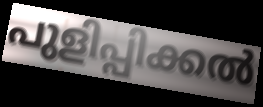
പുളിപ്പിക്കൽ